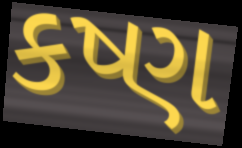
કષ્ણ